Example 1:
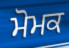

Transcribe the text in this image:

ਮੋਮਕ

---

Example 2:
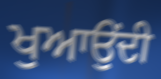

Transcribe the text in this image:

ਖੁਆਉਂਦੀ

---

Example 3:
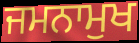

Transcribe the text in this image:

ਜਮਨਾਮੁਖ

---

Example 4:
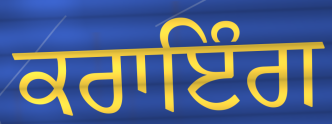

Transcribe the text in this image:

ਕਰਾਇੰਗ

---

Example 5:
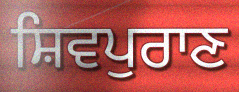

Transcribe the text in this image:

ਸ਼ਿਵਪੁਰਾਣ